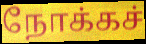
நோக்கச்